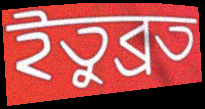
ইতুব্রত